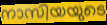
നാസിയയുടെ